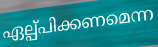
ഏല്പ്പിക്കണമെന്ന